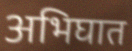
अभिघात